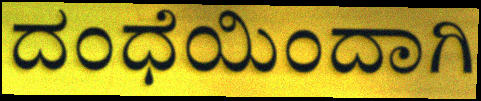
ದಂಧೆಯಿಂದಾಗಿ